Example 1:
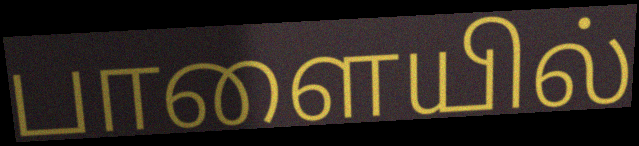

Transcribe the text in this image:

பாளையில்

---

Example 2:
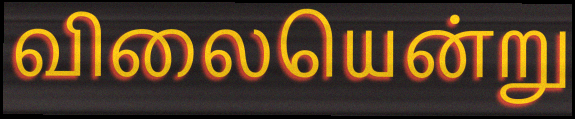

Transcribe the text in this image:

விலையென்று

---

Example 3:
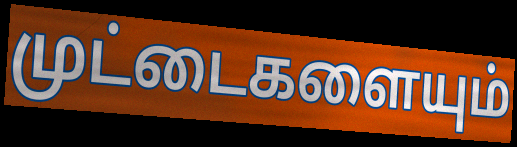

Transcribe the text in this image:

முட்டைகளையும்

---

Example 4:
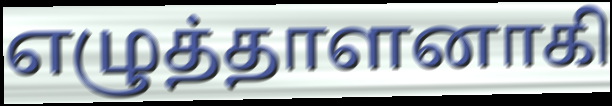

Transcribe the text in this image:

எழுத்தாளனாகி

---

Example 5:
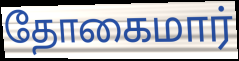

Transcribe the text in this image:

தோகைமார்